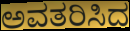
ಅವತರಿಸಿದ